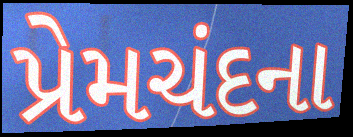
પ્રેમચંદના